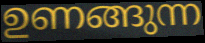
ഉണങ്ങുന്ന